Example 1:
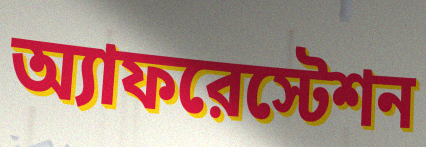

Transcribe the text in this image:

অ্যাফরেস্টেশন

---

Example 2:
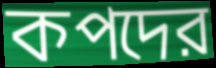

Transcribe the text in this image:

কপদের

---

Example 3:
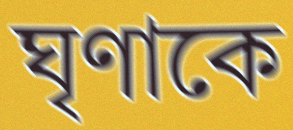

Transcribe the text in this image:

ঘৃণাকে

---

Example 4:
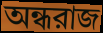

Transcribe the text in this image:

অন্ধরাজ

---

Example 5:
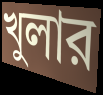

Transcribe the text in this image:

খুলার